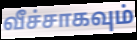
வீச்சாகவும்